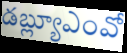
డబ్ల్యూఎంవో